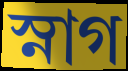
স্নাগ